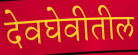
देवघेवीतील